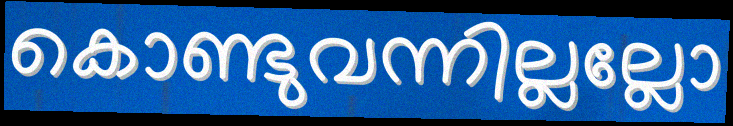
കൊണ്ടുവന്നില്ലല്ലോ